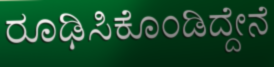
ರೂಢಿಸಿಕೊಂಡಿದ್ದೇನೆ